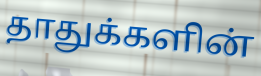
தாதுக்களின்